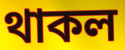
থাকল